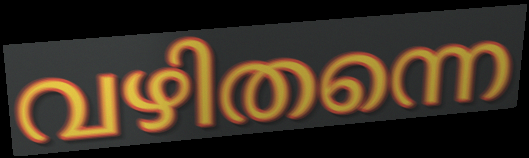
വഴിതന്നെ